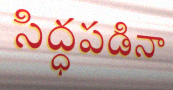
సిద్ధపడినా